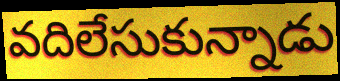
వదిలేసుకున్నాడు